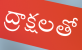
ద్రాక్షలతో